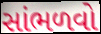
સાંભળવો